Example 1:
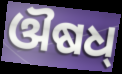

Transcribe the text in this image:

ଔଷଧ୍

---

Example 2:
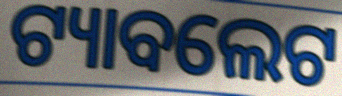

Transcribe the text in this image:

ଟ୍ୟାବଲେଟ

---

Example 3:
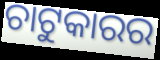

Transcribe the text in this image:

ଚାଟୁକାରର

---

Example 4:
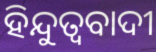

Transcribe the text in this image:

ହିନ୍ଦୁତ୍ୱବାଦୀ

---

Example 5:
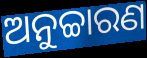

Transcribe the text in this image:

ଅନୁଚ୍ଚାରଣ